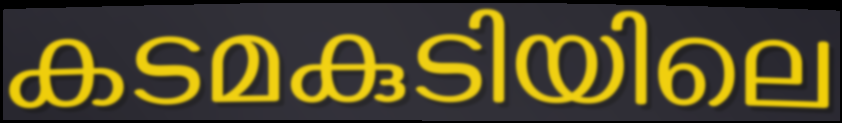
കടമകുടിയിലെ